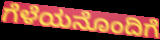
ಗೆಳೆಯನೊಂದಿಗೆ